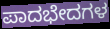
ಪಾದಭೇದಗಳ